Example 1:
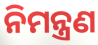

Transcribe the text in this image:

ନିମନ୍ତ୍ରଣ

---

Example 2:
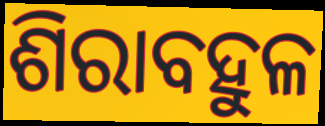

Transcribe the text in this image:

ଶିରାବହୁଳ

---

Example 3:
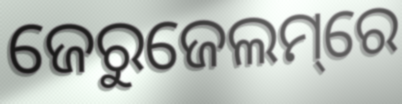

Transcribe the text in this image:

ଜେରୁଜେଲମ୍‌ରେ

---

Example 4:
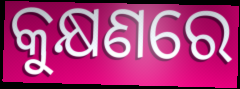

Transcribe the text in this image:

କୁକ୍ଷଣରେ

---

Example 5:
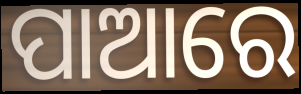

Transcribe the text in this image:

ପାଆରେ